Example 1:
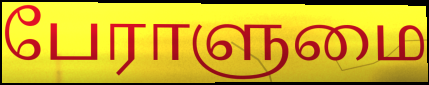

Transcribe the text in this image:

பேராளுமை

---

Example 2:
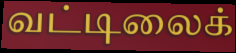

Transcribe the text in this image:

வட்டிலைக்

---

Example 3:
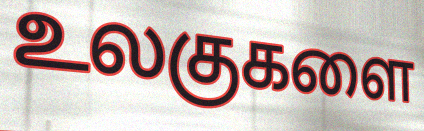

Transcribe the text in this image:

உலகுகளை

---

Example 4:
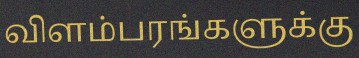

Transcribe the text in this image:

விளம்பரங்களுக்கு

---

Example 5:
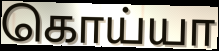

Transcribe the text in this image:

கொய்யா